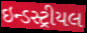
ઇન્ડસ્ટ્રીયલ